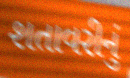
શતાવરીનું